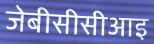
जेबीसीसीआइ